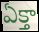
ఏక్తా